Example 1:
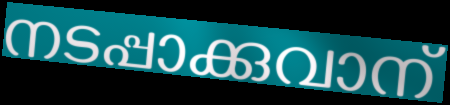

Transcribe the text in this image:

നടപ്പാക്കുവാന്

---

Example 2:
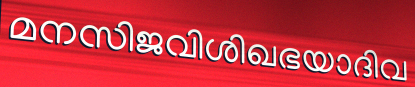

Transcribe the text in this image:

മനസിജവിശിഖഭയാദിവ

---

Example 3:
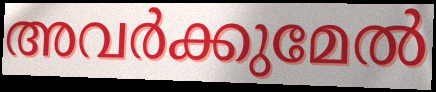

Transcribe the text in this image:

അവർക്കുമേൽ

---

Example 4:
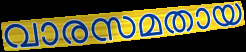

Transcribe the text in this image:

വാരസമതായ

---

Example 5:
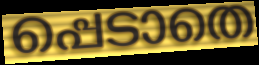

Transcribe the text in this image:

പ്പെടാതെ